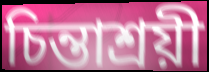
চিন্তাশ্রয়ী